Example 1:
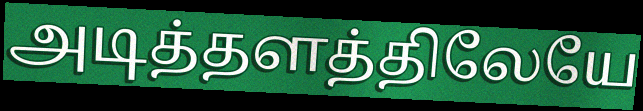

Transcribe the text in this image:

அடித்தளத்திலேயே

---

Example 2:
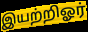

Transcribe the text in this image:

இயற்றிஓர்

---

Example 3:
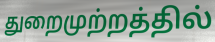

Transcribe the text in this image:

துறைமுற்றத்தில்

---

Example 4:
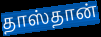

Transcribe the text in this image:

தாஸ்தான்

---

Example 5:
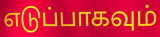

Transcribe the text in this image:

எடுப்பாகவும்